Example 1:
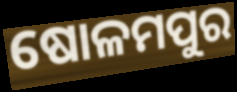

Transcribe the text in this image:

ଷୋଳମପୁର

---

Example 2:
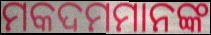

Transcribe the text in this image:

ମକଦମମାନଙ୍କ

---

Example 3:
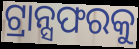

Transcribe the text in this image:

ଟ୍ରାନ୍ସଫରକୁ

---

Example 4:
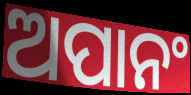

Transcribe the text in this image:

ଅପାନଂ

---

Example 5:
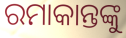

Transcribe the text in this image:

ରମାକାନ୍ତଙ୍କୁ